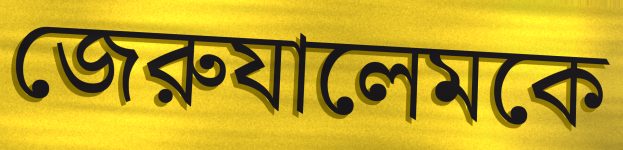
জেরুযালেমকে